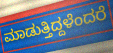
ಮಾಡುತ್ತಿದ್ದಳೆಂದರೆ